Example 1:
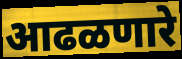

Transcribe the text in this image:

आढळणारे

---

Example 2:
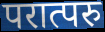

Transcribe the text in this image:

परात्परु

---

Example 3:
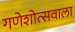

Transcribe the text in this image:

गणेशोत्सवाला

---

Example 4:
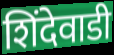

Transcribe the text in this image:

शिंदेवाडी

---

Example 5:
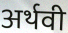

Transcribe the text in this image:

अर्थवी